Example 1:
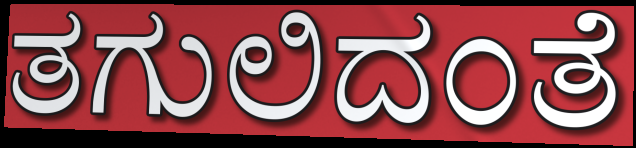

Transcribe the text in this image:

ತಗುಲಿದಂತೆ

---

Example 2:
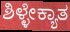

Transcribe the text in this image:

ಶಿಳ್ಳೇಕ್ಯಾತ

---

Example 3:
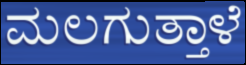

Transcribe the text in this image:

ಮಲಗುತ್ತಾಳೆ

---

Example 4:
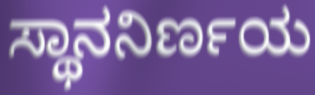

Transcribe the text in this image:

ಸ್ಥಾನನಿರ್ಣಯ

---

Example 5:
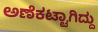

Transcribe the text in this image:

ಅಣೆಕಟ್ಟಾಗಿದ್ದು